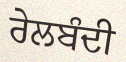
ਰੇਲਬੰਦੀ